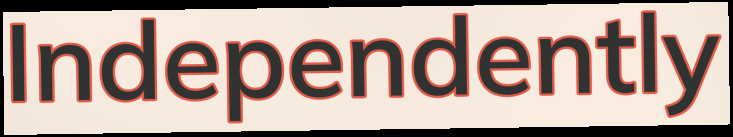
Independently